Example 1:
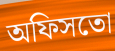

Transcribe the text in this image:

অফিসতো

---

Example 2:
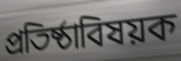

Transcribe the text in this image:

প্রতিষ্ঠাবিষয়ক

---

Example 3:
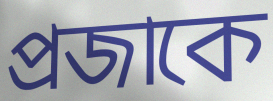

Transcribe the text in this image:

প্রজাকে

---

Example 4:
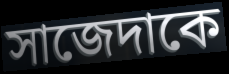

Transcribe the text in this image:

সাজেদাকে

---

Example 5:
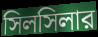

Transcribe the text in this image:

সিলসিলার